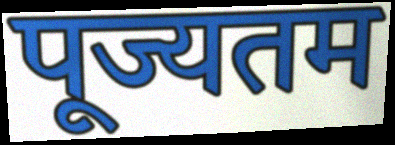
पूज्यतम